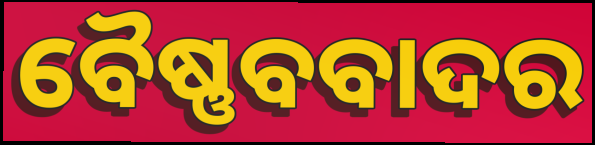
ବୈଷ୍ଣବବାଦର